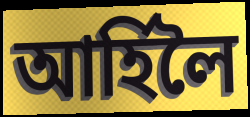
আৰ্হিলৈ